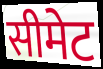
सीमेट